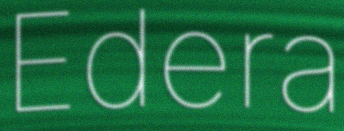
Edera